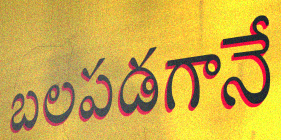
బలపడగానే